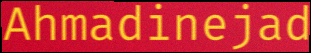
Ahmadinejad